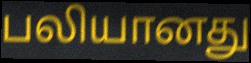
பலியானது